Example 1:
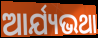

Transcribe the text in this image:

ଆର୍ଯ୍ୟଭଥା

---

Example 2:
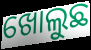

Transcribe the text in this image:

ଖୋଲୁଛ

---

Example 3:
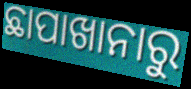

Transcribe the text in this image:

ଛାପାଖାନାରୁ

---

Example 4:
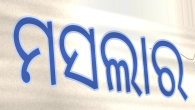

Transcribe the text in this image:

ମସଲାର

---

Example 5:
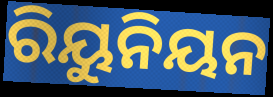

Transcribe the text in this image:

ରିୟୁନିୟନ